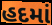
હદમાં